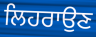
ਲਿਹਰਾਉਣ